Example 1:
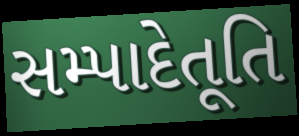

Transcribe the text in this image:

સમ્પાદેતૂતિ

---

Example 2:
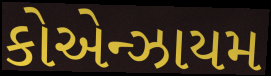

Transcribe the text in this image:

કોએન્ઝાયમ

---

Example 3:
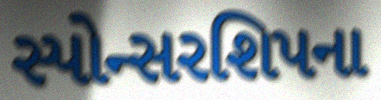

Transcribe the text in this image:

સ્પોન્સરશિપના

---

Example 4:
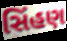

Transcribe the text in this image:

સિંહણ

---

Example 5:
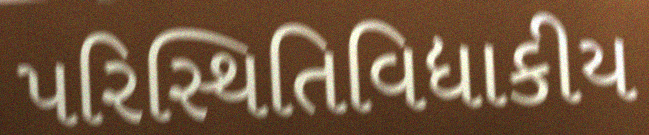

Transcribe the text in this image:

પરિસ્થિતિવિદ્યાકીય